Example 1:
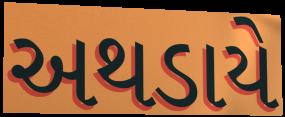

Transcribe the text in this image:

અથડાયે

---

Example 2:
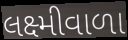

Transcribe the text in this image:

લક્ષ્મીવાળા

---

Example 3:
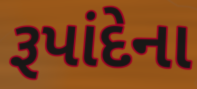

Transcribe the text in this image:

રૂપાંદેના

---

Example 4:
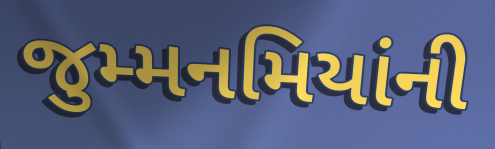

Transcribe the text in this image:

જુમ્મનમિયાંની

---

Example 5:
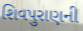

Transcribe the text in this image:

શિવપુરાણની